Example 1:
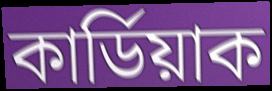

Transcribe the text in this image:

কাৰ্ডিয়াক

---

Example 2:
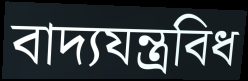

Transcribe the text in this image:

বাদ্যযন্ত্ৰবিধ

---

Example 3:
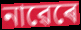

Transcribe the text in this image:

নাৱেৰে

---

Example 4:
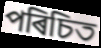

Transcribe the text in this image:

পৰিচিত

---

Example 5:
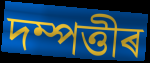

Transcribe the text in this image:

দম্পত্তীৰ